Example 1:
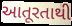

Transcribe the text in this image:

આતૂરતાથી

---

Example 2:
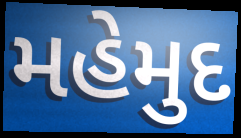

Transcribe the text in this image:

મહેમુદ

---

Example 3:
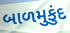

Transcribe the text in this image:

બાળમુકુંદ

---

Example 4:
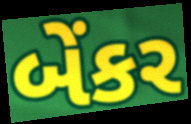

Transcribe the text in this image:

બેંકર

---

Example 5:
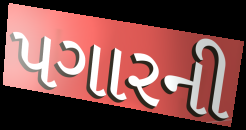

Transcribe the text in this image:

પગારની